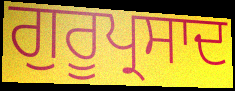
ਗੁਰੂਪ੍ਰਸਾਦ